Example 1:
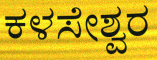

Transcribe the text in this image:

ಕಳಸೇಶ್ವರ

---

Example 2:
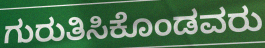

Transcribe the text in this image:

ಗುರುತಿಸಿಕೊಂಡವರು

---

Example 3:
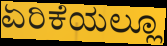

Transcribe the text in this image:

ಏರಿಕೆಯಲ್ಲೂ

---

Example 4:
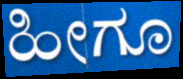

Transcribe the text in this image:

ಹೀಗೂ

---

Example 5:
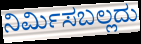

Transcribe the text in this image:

ನಿರ್ಮಿಸಬಲ್ಲದು